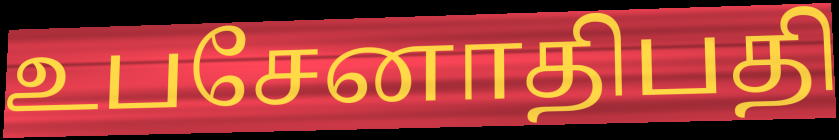
உபசேனாதிபதி